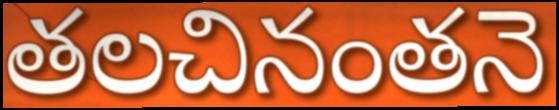
తలచినంతనె